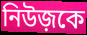
নিউজ়কে